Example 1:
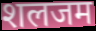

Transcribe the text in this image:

शलजम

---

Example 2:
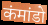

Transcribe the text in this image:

कंमांडो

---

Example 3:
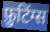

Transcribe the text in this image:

फ़ुटिंग्स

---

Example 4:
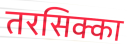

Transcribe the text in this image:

तरसिक्का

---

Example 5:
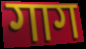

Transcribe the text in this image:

गाग